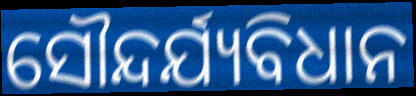
ସୌନ୍ଦର୍ଯ୍ୟବିଧାନ